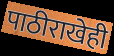
पाठीराखेही